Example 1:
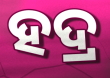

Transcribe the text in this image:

ହଦ୍ର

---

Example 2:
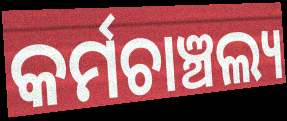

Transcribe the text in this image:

କର୍ମଚାଞ୍ଚଲ୍ୟ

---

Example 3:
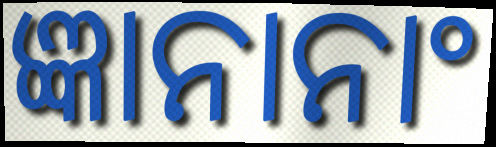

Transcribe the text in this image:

ଜ୍ଞାନାନାଂ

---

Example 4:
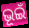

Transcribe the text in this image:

ଭୂଇଁ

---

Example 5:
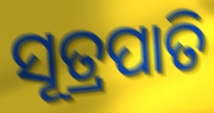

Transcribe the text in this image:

ସୂତ୍ରପାତି